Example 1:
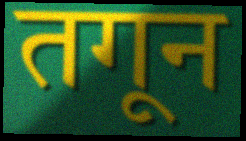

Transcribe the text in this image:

तगून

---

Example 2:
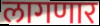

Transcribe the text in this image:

लागणार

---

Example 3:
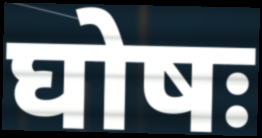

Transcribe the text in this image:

घोषः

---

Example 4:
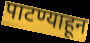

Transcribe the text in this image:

पाटण्याहून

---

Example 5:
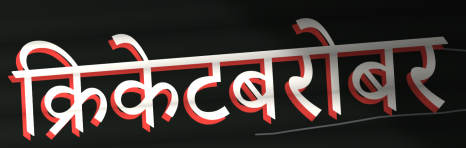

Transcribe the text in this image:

क्रिकेटबरोबर